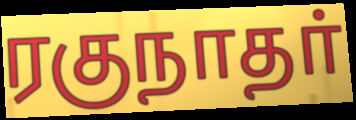
ரகுநாதர்